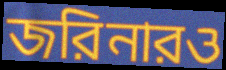
জরিনারও